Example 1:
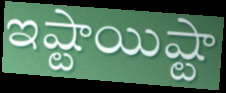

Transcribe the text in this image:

ఇష్టాయిష్టా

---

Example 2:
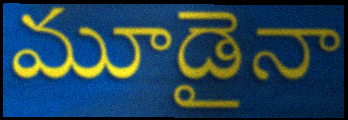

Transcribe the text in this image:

మూడైనా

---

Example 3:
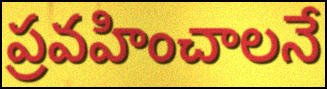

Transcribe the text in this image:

ప్రవహించాలనే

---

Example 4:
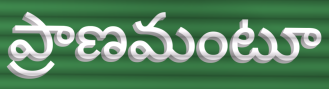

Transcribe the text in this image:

ప్రాణమంటూ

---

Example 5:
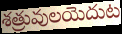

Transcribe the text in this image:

శత్రువులయెదుట